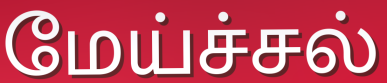
மேய்ச்சல்